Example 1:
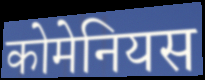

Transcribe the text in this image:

कोमेनियस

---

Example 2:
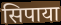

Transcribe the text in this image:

सिपाया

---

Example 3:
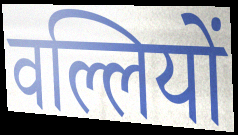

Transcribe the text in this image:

वल्लियों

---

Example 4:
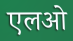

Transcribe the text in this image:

एलओ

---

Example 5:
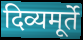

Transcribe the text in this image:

दिव्यमूर्ते